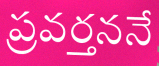
ప్రవర్తననే